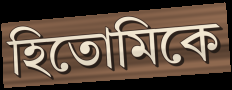
হিতোমিকে